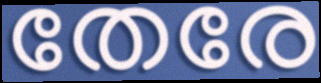
തേരേ